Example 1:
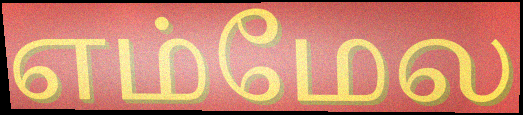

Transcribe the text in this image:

எம்மேல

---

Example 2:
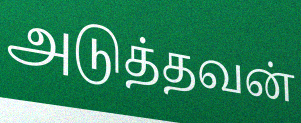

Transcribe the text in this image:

அடுத்தவன்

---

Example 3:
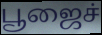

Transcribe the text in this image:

பூஜைச்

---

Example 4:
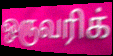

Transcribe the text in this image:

ஒருவரிக்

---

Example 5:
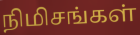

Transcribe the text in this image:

நிமிசங்கள்